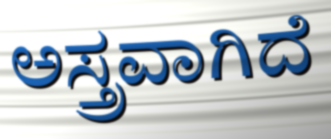
ಅಸ್ತ್ರವಾಗಿದೆ